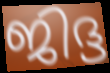
ജിദ്ദ